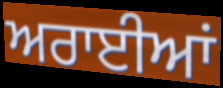
ਅਰਾਈਆਂ